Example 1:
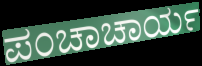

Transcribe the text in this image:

ಪಂಚಾಚಾರ್ಯ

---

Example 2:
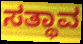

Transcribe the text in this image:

ಸತ್ಥಾವ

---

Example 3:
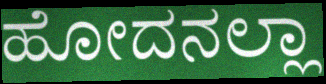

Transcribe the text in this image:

ಹೋದನಲ್ಲಾ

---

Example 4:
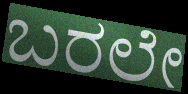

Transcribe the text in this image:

ಬರಲೇ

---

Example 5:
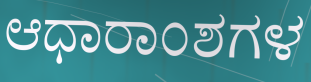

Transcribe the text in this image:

ಆಧಾರಾಂಶಗಳ